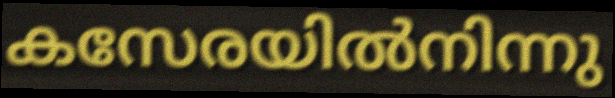
കസേരയിൽനിന്നു